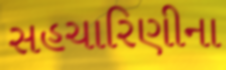
સહચારિણીના